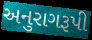
અનુરાગરૂપી